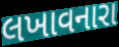
લખાવનારા